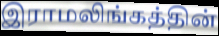
இராமலிங்கத்தின்